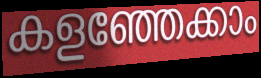
കളഞ്ഞേക്കാം